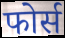
फोर्स